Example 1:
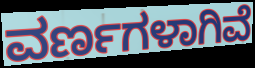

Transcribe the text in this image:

ವರ್ಣಗಳಾಗಿವೆ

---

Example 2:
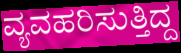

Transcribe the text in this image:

ವ್ಯವಹರಿಸುತ್ತಿದ್ದ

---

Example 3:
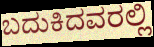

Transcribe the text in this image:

ಬದುಕಿದವರಲ್ಲಿ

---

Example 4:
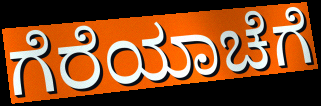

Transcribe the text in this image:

ಗೆರೆಯಾಚೆಗೆ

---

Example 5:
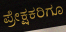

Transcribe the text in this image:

ಪ್ರೇಕ್ಷಕರಿಗೂ